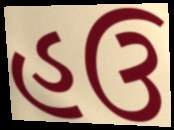
હઉ